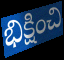
భిక్షించి